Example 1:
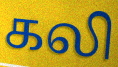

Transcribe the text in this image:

கலி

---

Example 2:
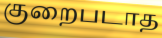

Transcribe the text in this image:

குறைபடாத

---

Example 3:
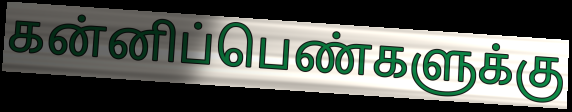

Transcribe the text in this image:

கன்னிப்பெண்களுக்கு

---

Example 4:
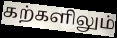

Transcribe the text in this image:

கற்களிலும்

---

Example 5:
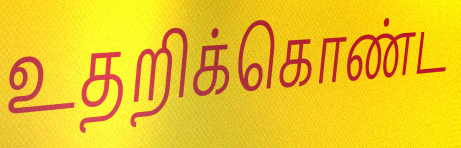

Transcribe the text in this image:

உதறிக்கொண்ட